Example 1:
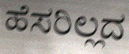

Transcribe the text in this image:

ಹೆಸರಿಲ್ಲದ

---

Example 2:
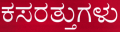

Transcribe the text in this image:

ಕಸರತ್ತುಗಳು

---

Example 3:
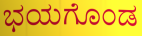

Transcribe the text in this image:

ಭಯಗೊಂಡ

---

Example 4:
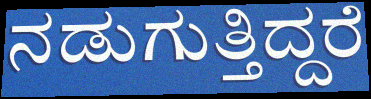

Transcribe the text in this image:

ನಡುಗುತ್ತಿದ್ದರೆ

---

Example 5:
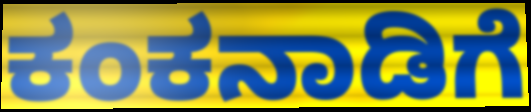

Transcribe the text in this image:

ಕಂಕನಾಡಿಗೆ